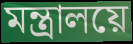
মন্ত্ৰালয়ে